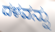
ದಳವನ್ನು